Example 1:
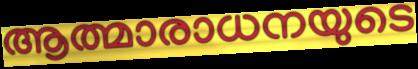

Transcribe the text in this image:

ആത്മാരാധനയുടെ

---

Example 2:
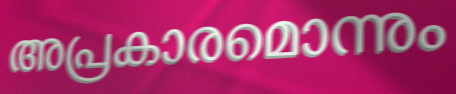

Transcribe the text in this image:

അപ്രകാരമൊന്നും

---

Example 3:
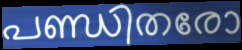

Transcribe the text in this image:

പണ്ഡിതരോ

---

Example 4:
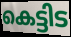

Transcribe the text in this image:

കെട്ടിട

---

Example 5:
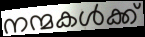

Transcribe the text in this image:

നന്മകൾക്ക്